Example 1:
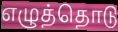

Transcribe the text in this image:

எழுத்தொடு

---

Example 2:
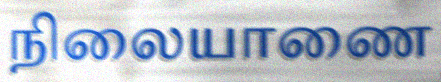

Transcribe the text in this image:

நிலையாணை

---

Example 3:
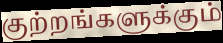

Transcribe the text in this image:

குற்றங்களுக்கும்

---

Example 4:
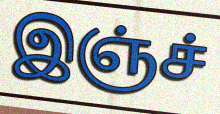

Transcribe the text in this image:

இஞ்ச்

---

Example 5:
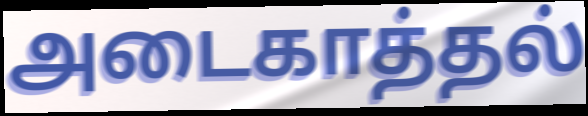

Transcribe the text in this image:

அடைகாத்தல்